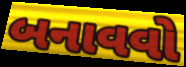
બનાવવો